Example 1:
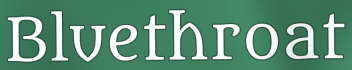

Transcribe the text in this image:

Bluethroat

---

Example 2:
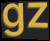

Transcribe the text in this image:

gz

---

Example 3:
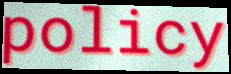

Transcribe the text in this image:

policy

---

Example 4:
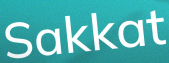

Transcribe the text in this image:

Sakkat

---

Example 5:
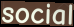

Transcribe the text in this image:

social